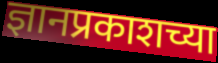
ज्ञानप्रकाशच्या